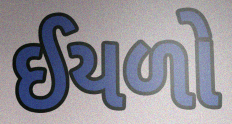
ઈયળો